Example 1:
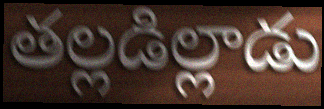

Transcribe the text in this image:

తల్లడిల్లాడు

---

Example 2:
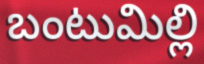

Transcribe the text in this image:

బంటుమిల్లి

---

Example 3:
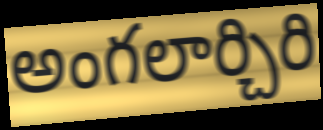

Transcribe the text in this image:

అంగలార్చిరి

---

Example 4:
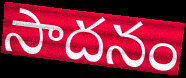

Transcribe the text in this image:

సాదనం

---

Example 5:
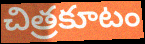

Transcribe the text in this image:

చిత్రకూటం